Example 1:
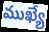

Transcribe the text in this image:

ముఖ్యే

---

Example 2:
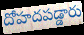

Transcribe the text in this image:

దోహదపడ్డారు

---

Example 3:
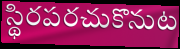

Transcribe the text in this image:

స్థిరపరచుకొనుట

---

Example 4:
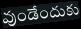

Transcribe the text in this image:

వుండేందుకు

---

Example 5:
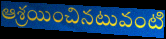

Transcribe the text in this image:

ఆశ్రయించినటువంటి